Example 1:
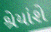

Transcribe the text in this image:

શ્રેયાંશે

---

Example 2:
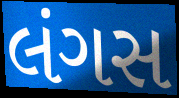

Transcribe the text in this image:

લંગસ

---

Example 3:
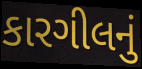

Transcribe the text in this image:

કારગીલનું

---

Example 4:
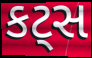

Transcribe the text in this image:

કટ્સ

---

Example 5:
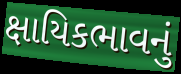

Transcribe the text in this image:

ક્ષાયિકભાવનું